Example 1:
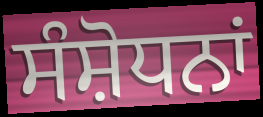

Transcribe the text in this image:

ਸੰਸ਼ੋਧਨਾਂ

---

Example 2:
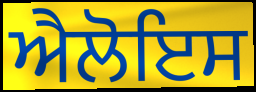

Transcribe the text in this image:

ਐਲੋਇਸ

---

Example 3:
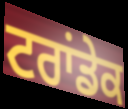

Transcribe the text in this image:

ਟਰਾਂਡੇਕ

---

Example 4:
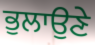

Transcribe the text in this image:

ਭੁਲਾਉਣੇ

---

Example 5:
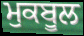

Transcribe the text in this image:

ਮੁਕਬੂਲ